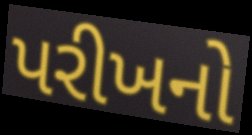
પરીખનો